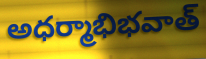
అధర్మాభిభవాత్